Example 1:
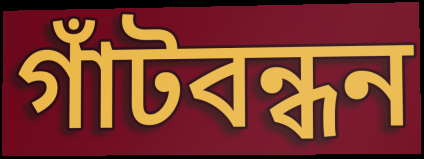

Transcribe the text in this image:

গাঁটবন্ধন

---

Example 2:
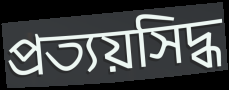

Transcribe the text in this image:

প্রত্যয়সিদ্ধ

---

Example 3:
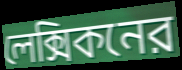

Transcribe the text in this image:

লেক্সিকনের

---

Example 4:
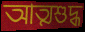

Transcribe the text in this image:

আত্মশুদ্ধ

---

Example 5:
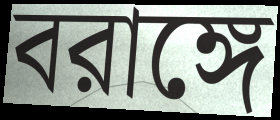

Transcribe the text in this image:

বরাঙ্গে